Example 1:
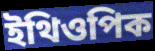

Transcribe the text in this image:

ইথিওপিক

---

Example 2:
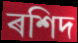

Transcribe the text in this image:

ৰশিদ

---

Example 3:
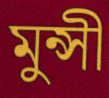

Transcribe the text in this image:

মুন্সী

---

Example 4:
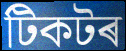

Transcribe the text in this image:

টিকটৰ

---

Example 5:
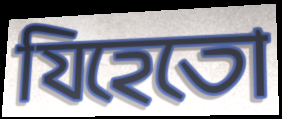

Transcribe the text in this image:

যিহেতো